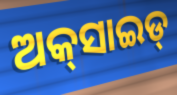
ଅକ୍‌ସାଇଡ୍